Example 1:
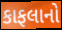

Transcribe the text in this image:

કાફલાનો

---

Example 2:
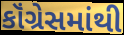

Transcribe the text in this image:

કૉંગ્રેસમાંથી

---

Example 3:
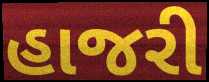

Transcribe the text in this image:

હાજરી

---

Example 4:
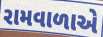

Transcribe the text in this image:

રામવાળાએ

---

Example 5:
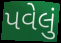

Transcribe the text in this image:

પવેલું